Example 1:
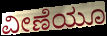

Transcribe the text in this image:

ವೀಣೆಯೂ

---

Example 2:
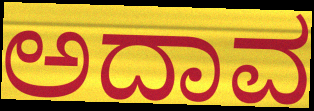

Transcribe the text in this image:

ಅದಾವ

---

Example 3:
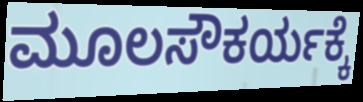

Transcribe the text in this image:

ಮೂಲಸೌಕರ್ಯಕ್ಕೆ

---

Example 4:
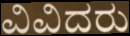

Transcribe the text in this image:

ವಿವಿದರು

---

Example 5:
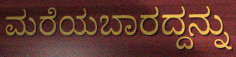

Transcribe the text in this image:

ಮರೆಯಬಾರದ್ದನ್ನು